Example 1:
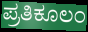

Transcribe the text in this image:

ಪ್ರತಿಕೂಲಂ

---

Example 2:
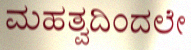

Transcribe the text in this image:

ಮಹತ್ವದಿಂದಲೇ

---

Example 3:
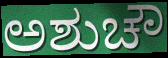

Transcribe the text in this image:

ಅಶುಚೌ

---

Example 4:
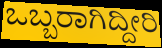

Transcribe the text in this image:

ಒಬ್ಬರಾಗಿದ್ದೀರಿ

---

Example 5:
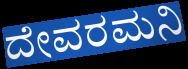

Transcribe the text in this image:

ದೇವರಮನಿ